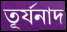
তূর্যনাদ